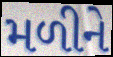
મળીને